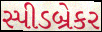
સ્પીડબ્રેકર